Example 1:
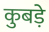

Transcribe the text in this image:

कुबड़े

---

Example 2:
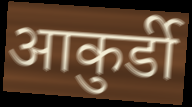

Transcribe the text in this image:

आकुर्डी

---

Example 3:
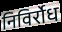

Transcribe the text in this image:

निविर्रोध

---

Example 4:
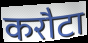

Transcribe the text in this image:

करौटा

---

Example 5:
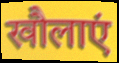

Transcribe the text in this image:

खौलाएं